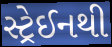
સ્ટ્રેઈનથી